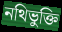
নথিভুক্তি